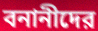
বনানীদের